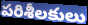
పరిశీలకులు